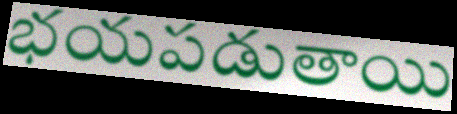
భయపడుతాయి